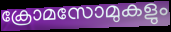
ക്രോമസോമുകളും